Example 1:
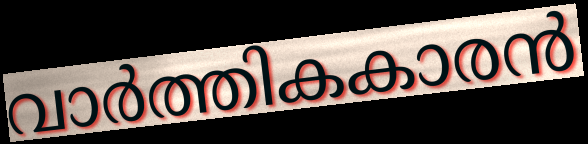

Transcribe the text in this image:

വാർത്തികകാരൻ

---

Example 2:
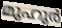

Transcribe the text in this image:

മുഹുർ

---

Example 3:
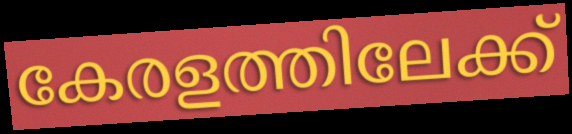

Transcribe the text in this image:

കേരളത്തിലേക്ക്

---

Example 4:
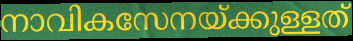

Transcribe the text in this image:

നാവികസേനയ്ക്കുള്ളത്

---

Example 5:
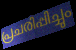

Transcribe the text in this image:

പ്രചരിപ്പിച്ചും